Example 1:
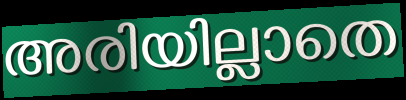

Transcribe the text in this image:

അരിയില്ലാതെ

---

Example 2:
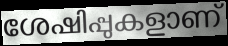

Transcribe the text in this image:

ശേഷിപ്പുകളാണ്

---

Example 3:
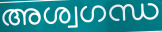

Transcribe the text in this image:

അശ്വഗന്ധ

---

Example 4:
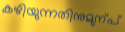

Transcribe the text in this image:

കഴിയുന്നതിനുമുന്പ്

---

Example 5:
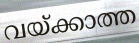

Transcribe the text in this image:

വയ്ക്കാത്ത